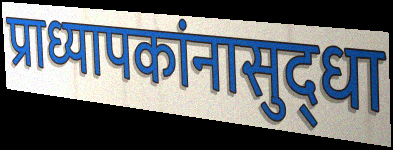
प्राध्यापकांनासुद्धा